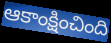
ఆకాంక్షించింది